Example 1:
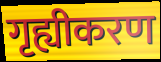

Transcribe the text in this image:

गृह्यीकरण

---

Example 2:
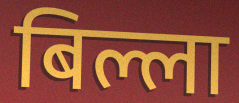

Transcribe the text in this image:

बिल्ला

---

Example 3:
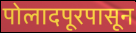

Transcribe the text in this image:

पोलादपूरपासून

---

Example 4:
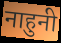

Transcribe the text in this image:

नाहुनी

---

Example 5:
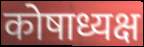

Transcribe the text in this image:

कोषाध्यक्ष